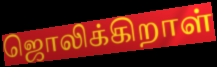
ஜொலிக்கிறாள்